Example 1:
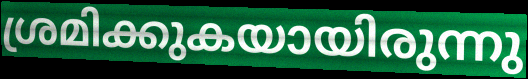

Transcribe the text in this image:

ശ്രമിക്കുകയായിരുന്നു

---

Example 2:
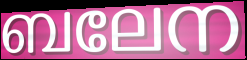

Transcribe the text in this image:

ബലേന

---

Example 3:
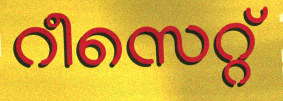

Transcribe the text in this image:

റീസെറ്റ്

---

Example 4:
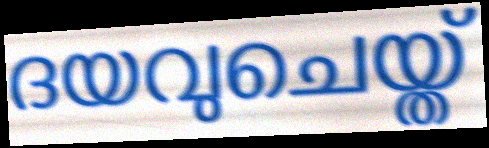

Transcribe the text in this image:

ദയവുചെയ്ത്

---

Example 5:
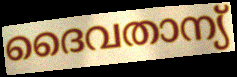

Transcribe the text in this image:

ദൈവതാന്യ്